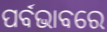
ପର୍ବଭାବରେ